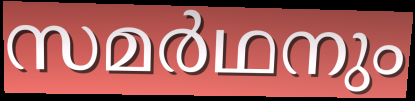
സമർഥനും